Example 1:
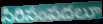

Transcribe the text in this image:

సిరిసంపదలూ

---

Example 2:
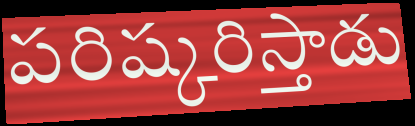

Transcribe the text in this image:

పరిష్కరిస్తాడు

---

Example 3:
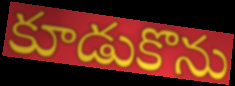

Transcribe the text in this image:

కూడుకొను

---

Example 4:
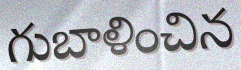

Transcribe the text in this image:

గుబాళించిన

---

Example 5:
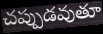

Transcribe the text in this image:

చప్పుడవుతూ